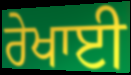
ਰੇਖਾਈ